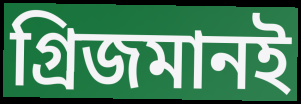
গ্রিজমানই